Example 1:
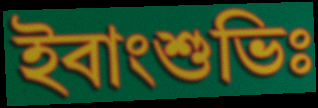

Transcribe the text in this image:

ইবাংশুভিঃ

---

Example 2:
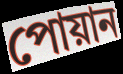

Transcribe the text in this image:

পোয়ান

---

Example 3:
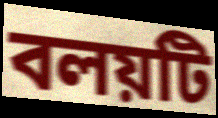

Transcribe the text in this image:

বলয়টি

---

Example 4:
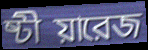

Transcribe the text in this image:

ষ্টীয়ারেজ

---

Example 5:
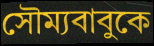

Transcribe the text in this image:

সৌম্যবাবুকে